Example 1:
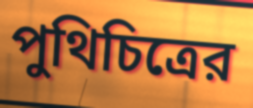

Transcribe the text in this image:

পুথিচিত্রের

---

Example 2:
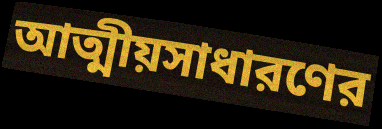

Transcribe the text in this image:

আত্মীয়সাধারণের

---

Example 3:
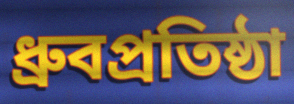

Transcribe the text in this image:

ধ্রুবপ্রতিষ্ঠা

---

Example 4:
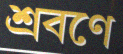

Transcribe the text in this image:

শ্রবণে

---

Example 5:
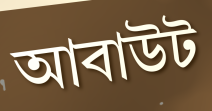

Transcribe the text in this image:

আবাউট